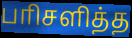
பரிசளித்த